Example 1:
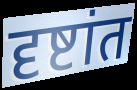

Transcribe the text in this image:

दृष्टांत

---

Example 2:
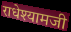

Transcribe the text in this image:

राधेश्यामजी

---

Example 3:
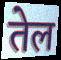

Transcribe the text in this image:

तेल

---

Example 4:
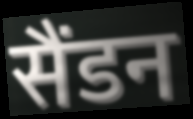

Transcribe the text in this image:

सैंडन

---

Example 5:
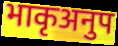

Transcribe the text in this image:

भाकृअनुप